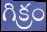
గిక్రం